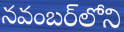
నవంబర్‌లోని